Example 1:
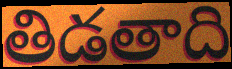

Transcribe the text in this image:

తిడతాది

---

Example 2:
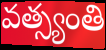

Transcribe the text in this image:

వత్స్యంతి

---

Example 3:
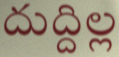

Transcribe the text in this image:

దుద్దిల్ల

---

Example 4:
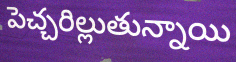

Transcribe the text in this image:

పెచ్చరిల్లుతున్నాయి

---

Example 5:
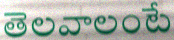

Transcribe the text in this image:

తెలవాలంటే